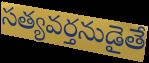
సత్యవర్తనుడైతే